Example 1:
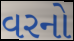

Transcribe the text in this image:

વરનો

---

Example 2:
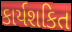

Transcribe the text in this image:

કાર્યશકિત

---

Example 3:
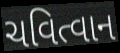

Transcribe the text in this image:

ચવિત્વાન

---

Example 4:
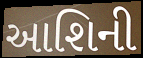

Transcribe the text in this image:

આશિની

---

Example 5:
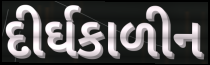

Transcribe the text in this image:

દીર્ઘકાળીન